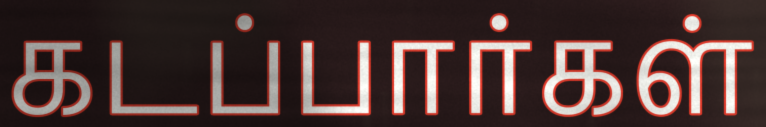
கடப்பார்கள்